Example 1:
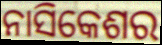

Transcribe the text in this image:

ନାସିକେଶର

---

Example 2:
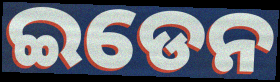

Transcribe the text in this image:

ଇଡେନ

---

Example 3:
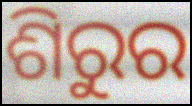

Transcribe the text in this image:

ଶିରୁର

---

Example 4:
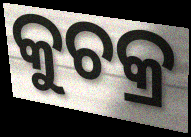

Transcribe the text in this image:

କୁଚକ୍ର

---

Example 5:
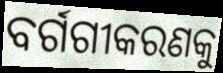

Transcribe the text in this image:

ବର୍ଗଗୀକରଣକୁ